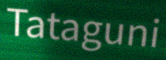
Tataguni